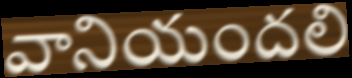
వానియందలి